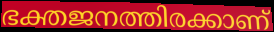
ഭക്തജനത്തിരക്കാണ്